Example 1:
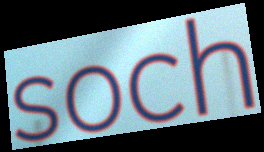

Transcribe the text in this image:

soch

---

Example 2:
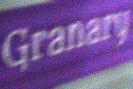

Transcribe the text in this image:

Granary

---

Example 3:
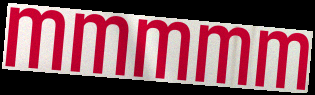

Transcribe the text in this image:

mmmmm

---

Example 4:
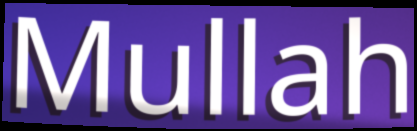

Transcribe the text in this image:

Mullah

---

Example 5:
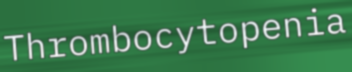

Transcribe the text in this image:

Thrombocytopenia